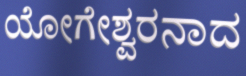
ಯೋಗೇಶ್ವರನಾದ